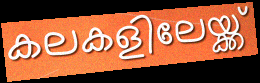
കലകളിലേയ്ക്ക്